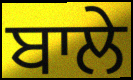
ਬਾਲੇ